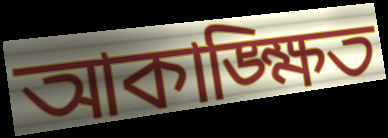
আকাঙ্ক্ষিত